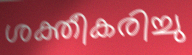
ശക്തീകരിച്ചു